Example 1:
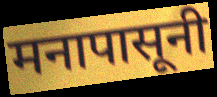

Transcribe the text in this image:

मनापासूनी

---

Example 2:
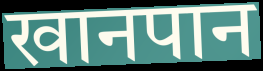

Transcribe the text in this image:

खानपान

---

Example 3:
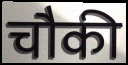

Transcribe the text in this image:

चौकी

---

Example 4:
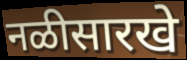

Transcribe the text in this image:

नळीसारखे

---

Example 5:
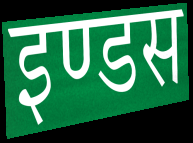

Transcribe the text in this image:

इण्डस